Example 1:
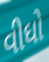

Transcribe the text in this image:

વીઘો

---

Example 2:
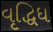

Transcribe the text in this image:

વૃદ્ધિધ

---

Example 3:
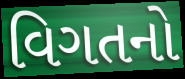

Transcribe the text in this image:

વિગતનો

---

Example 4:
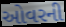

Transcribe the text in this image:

ઓવરની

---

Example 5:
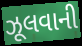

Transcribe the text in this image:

ઝૂલવાની